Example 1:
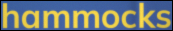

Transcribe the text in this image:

hammocks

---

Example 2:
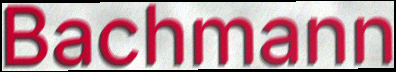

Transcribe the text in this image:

Bachmann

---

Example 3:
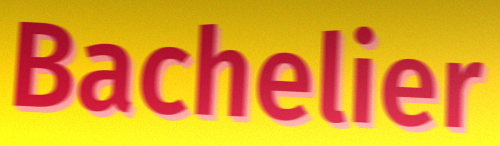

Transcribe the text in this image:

Bachelier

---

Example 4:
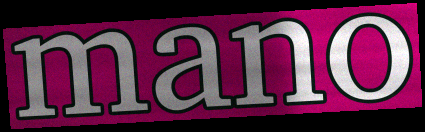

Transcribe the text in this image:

mano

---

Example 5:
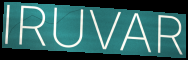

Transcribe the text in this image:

IRUVAR